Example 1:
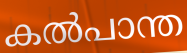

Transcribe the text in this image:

കൽപാന്ത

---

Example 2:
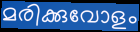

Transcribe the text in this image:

മരിക്കുവോളം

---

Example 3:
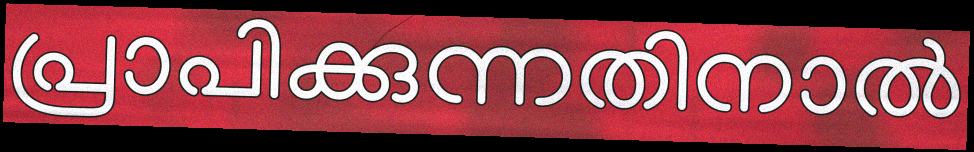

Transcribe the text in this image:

പ്രാപിക്കുന്നതിനാൽ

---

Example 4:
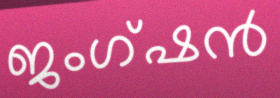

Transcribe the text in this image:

ജംഗ്ഷൻ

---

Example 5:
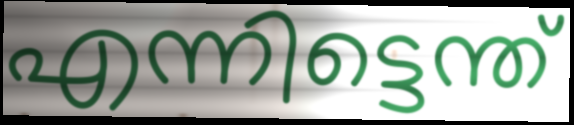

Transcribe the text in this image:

എന്നിട്ടെന്ത്